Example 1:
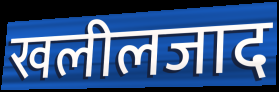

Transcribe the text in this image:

खलीलजाद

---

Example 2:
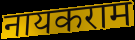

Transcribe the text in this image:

नायकराम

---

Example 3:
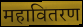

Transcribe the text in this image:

महावितरण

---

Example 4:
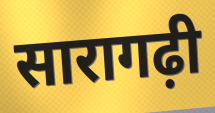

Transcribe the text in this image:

सारागढ़ी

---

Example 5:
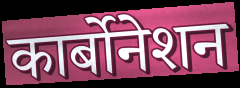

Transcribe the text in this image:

कार्बोनेशन